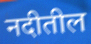
नदीतील